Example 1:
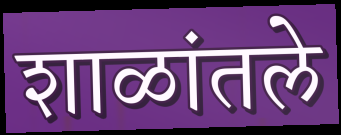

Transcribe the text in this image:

शाळांतले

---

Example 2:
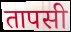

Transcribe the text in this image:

तापसी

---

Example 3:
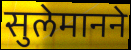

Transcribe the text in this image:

सुलेमानने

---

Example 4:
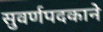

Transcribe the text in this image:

सुवर्णपदकाने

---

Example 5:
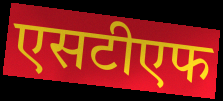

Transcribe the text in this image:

एसटीएफ